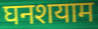
घनशयाम